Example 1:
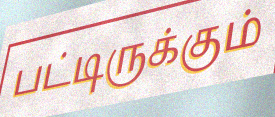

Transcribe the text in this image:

பட்டிருக்கும்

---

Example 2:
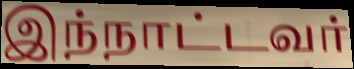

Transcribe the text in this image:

இந்நாட்டவர்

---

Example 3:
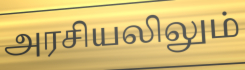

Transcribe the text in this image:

அரசியலிலும்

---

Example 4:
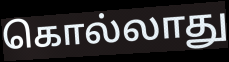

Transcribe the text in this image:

கொல்லாது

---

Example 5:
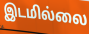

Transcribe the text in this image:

இடமில்லை